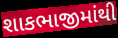
શાકભાજીમાંથી